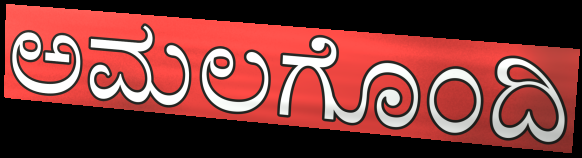
ಅಮಲಗೊಂದಿ